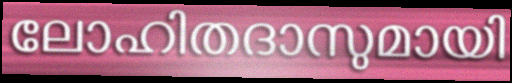
ലോഹിതദാസുമായി